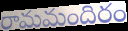
రామమందిరం